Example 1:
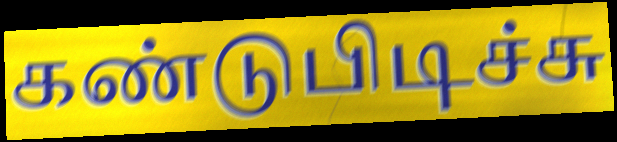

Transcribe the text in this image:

கண்டுபிடிச்சு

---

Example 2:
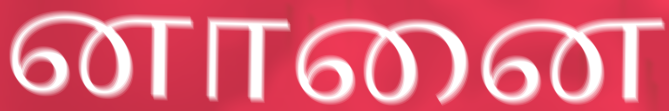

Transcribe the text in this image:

னானை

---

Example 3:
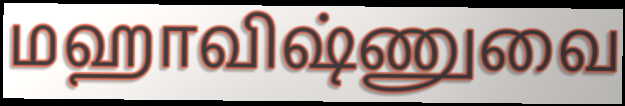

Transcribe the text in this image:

மஹாவிஷ்ணுவை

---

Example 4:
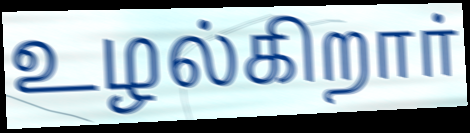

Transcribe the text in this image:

உழல்கிறார்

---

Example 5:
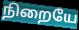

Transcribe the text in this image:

நிறையே